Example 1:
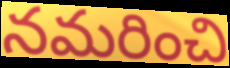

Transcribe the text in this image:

నమరించి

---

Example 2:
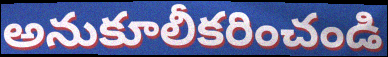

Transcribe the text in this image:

అనుకూలీకరించండి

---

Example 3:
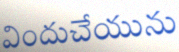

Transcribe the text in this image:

విందుచేయును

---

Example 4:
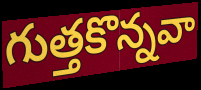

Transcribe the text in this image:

గుత్తకొన్నవా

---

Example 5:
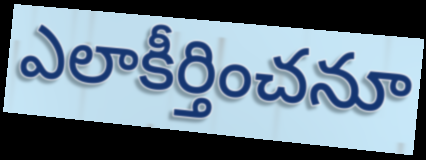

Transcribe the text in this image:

ఎలాకీర్తించనూ